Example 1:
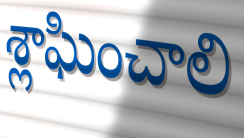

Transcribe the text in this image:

శ్లాఘించాలి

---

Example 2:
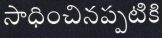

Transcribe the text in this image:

సాధించినప్పటికి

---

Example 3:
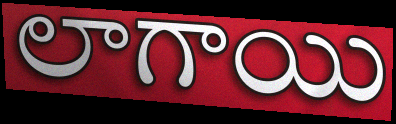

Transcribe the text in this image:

లాగాయి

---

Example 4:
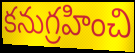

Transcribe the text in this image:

కనుగ్రహించి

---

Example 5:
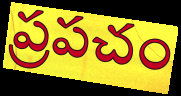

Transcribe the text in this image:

ప్రపచం